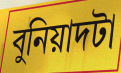
বুনিয়াদটা